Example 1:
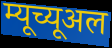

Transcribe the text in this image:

म्यूच्यूअल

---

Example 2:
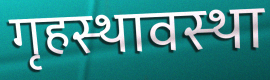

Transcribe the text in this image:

गृहस्थावस्था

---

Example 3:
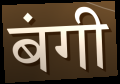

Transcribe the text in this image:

बंगी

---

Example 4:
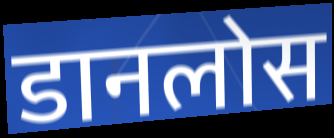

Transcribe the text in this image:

डानलोस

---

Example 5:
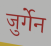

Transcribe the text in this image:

जुर्गेन